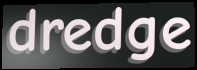
dredge